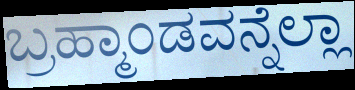
ಬ್ರಹ್ಮಾಂಡವನ್ನೆಲ್ಲಾ